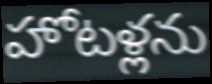
హోటళ్లను